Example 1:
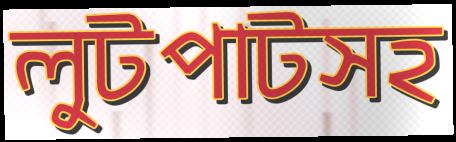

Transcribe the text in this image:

লুটপাটসহ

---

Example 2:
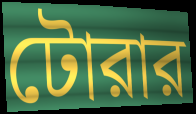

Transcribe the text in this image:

টোরার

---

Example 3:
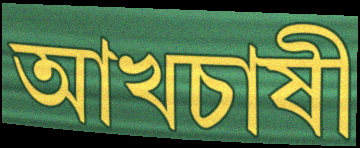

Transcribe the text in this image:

আখচাষী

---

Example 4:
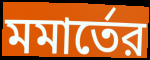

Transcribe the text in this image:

মমার্তের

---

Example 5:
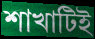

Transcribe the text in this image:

শাখাটিই